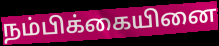
நம்பிக்கையினை